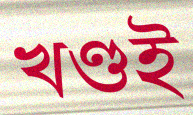
খণ্ডই